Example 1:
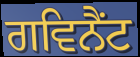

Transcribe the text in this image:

ਗਵਿਨੈਂਟ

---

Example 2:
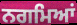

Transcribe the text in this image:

ਨਗਮਿਆਂ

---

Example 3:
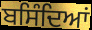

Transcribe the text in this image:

ਬਸਿੰਦਿਆਂ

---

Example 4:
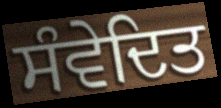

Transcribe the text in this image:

ਸੰਵੇਦਿਤ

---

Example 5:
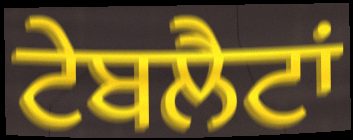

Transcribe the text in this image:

ਟੇਬਲੈਟਾਂ